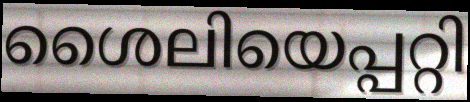
ശൈലിയെപ്പറ്റി